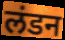
लंडन